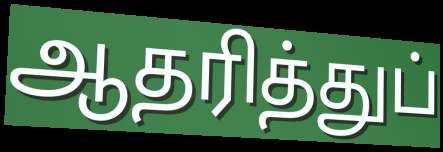
ஆதரித்துப்